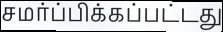
சமர்ப்பிக்கப்பட்டது